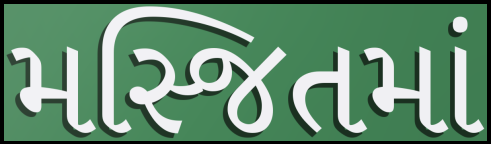
મસ્જિતમાં